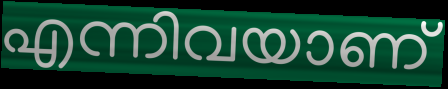
എന്നിവയാണ്